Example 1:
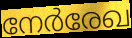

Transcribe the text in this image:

നേർരേഖ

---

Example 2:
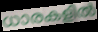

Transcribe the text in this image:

ധാരകളിൽ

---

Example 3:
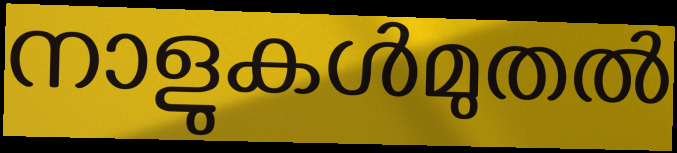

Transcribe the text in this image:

നാളുകൾമുതൽ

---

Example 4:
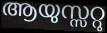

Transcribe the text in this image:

ആയുസ്സറ്റു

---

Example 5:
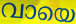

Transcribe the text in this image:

വായെ